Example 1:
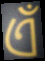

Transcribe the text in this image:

ଏଁ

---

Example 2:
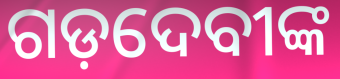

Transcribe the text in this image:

ଗଡ଼ଦେବୀଙ୍କ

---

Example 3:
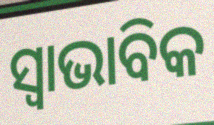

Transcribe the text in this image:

ସ୍ଵାଭାବିକ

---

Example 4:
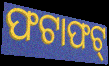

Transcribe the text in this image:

ଫଟାଫଟ୍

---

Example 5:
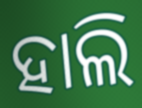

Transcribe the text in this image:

ହାଲି